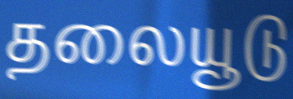
தலையூடு